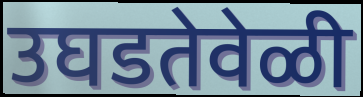
उघडतेवेळी